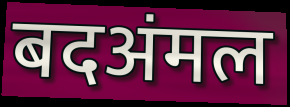
बदअंमल